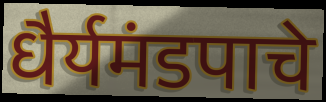
धैर्यमंडपाचे